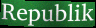
Republik